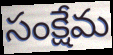
సంక్షేమ